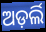
ଅଡ଼ର୍ଲି